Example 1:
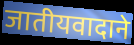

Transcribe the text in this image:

जातीयवादाने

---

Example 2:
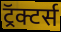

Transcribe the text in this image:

ट्रॅक्टर्स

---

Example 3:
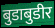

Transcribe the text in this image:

बुडाबुडीर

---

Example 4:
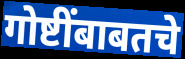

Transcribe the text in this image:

गोष्टींबाबतचे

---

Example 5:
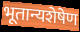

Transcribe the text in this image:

भूतान्यशेषेण